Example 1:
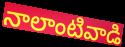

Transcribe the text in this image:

నాలాంటివాడి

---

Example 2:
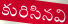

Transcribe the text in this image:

కురిసినవి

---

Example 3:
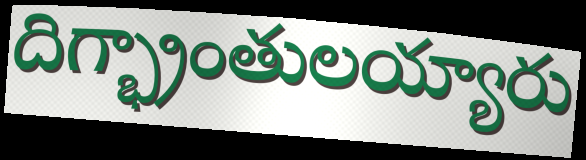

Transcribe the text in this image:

దిగ్భ్రాంతులయ్యారు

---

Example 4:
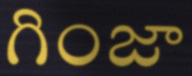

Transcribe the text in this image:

గింజా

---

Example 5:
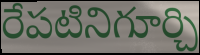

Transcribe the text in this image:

రేపటినిగూర్చి